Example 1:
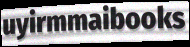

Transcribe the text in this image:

uyirmmaibooks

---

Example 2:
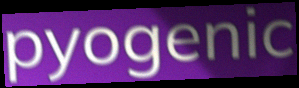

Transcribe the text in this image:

pyogenic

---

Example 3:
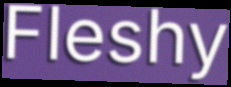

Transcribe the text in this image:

Fleshy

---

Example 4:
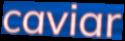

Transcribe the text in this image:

caviar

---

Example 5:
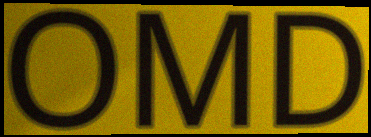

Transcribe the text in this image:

OMD